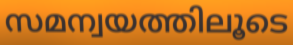
സമന്വയത്തിലൂടെ